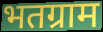
भतग्राम